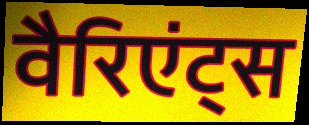
वैरिएंट्स